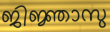
ജിജ്ഞാസു